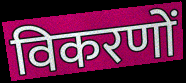
विकरणों